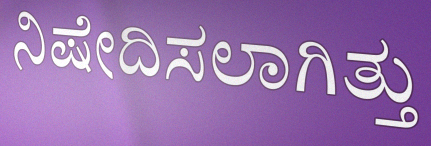
ನಿಷೇದಿಸಲಾಗಿತ್ತು